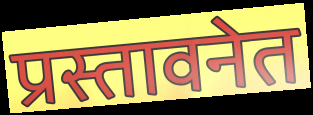
प्रस्तावनेत